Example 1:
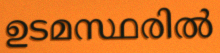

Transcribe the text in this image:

ഉടമസ്ഥരിൽ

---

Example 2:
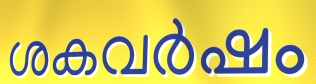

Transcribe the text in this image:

ശകവർഷം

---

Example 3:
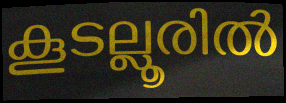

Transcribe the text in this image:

കൂടല്ലൂരിൽ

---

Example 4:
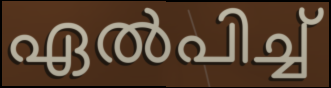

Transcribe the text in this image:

ഏൽപിച്ച്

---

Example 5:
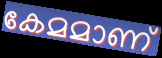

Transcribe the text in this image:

കേമമാണ്